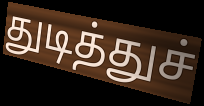
துடித்துச்